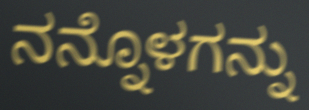
ನನ್ನೊಳಗನ್ನು